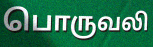
பொருவலி